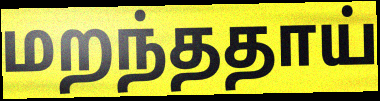
மறந்ததாய்